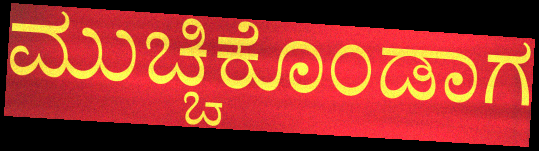
ಮುಚ್ಚಿಕೊಂಡಾಗ